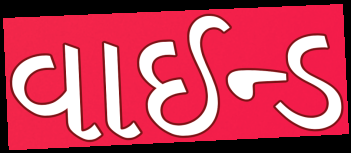
વાઈન્ડ